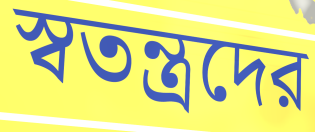
স্বতন্ত্রদের